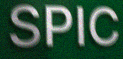
SPIC